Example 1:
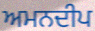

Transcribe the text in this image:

ਅਮਨਦੀਪ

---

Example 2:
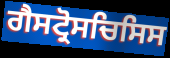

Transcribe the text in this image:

ਗੈਸਟ੍ਰੋਸਚਿਸਿਸ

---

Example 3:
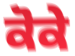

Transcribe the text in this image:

ਕੋਕੇ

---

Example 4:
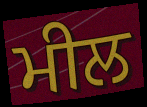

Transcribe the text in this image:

ਮੀਲ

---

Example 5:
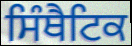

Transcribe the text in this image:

ਸਿੰਥੈਟਿਕ